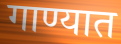
गाण्यात